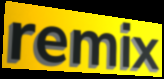
remix